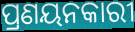
ପ୍ରଣୟନକାରୀ